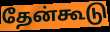
தேன்கூடு